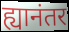
ह्यानंतर